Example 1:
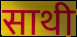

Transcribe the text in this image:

साथी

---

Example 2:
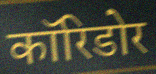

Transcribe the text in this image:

कॉरिडोर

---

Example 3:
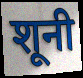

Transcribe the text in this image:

शूनी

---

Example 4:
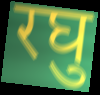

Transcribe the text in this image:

रघु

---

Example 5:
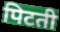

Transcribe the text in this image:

पिटती